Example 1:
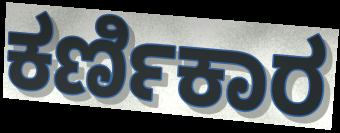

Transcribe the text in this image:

ಕರ್ಣಿಕಾರ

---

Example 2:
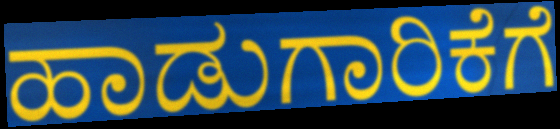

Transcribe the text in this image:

ಹಾಡುಗಾರಿಕೆಗೆ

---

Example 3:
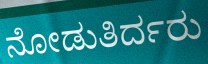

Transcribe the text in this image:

ನೋಡುತಿರ್ದರು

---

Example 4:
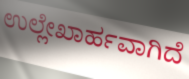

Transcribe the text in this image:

ಉಲ್ಲೇಖಾರ್ಹವಾಗಿದೆ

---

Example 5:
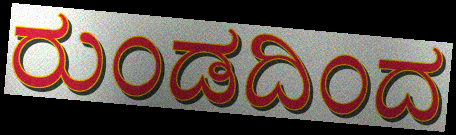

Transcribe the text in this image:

ರುಂಡದಿಂದ